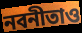
নবনীতাও